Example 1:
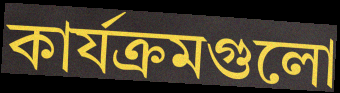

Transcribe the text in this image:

কার্যক্রমগুলো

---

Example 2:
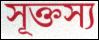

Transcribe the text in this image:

সূক্তস্য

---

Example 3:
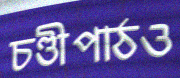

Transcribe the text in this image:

চণ্ডীপাঠও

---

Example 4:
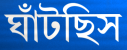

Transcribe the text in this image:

ঘাঁটছিস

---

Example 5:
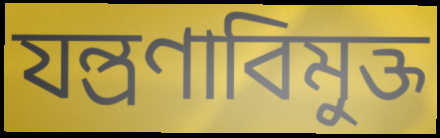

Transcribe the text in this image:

যন্ত্রণাবিমুক্ত